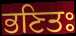
ਭਣਿਤਃ